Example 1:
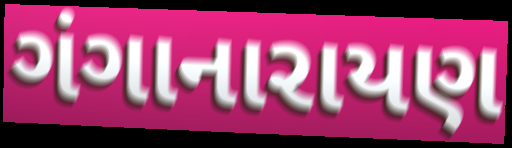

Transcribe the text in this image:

ગંગાનારાયણ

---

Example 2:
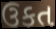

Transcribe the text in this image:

ઉકત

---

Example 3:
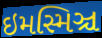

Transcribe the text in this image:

ઇમસ્મિઞ્ચ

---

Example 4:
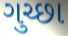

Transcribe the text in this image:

ગુચ્છા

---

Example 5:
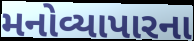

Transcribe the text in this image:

મનોવ્યાપારના